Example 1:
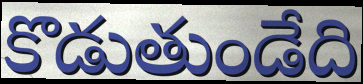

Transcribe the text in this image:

కొడుతుండేది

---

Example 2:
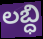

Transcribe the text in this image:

లబ్ధి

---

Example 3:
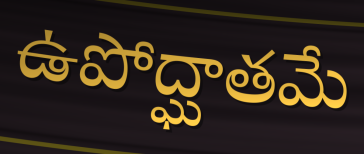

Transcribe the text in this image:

ఉపోద్ఘాతమే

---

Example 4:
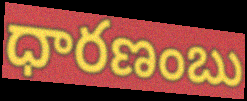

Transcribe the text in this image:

ధారణంబు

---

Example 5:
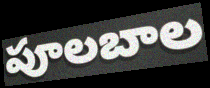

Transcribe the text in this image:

పూలబాల